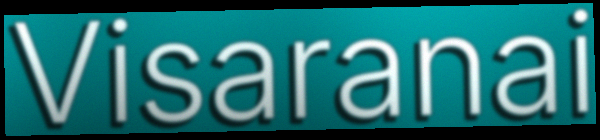
Visaranai